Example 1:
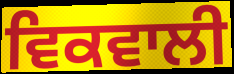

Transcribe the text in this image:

ਵਿਕਵਾਲੀ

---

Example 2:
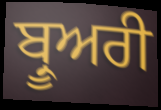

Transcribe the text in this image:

ਬ੍ਰੂਅਰੀ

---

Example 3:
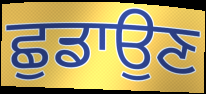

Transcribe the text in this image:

ਛੁਡਾਉਣ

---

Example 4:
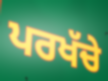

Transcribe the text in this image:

ਪਰਖੱਚੇ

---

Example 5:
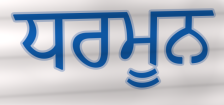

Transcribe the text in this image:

ਧਰਮੂਨ